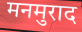
मनमुराद